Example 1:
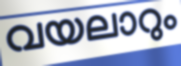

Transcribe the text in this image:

വയലാറും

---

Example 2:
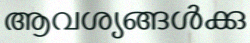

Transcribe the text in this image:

ആവശ്യങ്ങൾക്കു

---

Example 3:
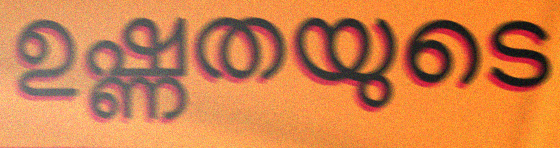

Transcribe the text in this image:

ഉഷ്ണതയുടെ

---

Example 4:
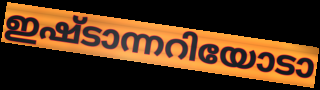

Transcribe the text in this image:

ഇഷ്ടാന്നറിയോടാ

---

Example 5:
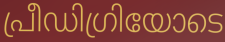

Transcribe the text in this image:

പ്രീഡിഗ്രിയോടെ